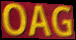
OAG